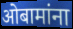
ओबामांना